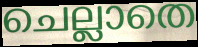
ചെല്ലാതെ